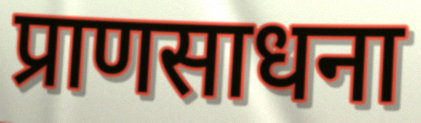
प्राणसाधना